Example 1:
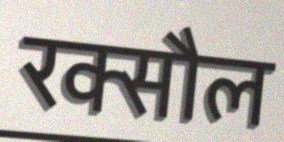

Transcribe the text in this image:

रक्सौल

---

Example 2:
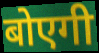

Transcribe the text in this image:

बोएगी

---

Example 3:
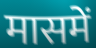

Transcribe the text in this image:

मासमें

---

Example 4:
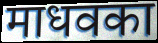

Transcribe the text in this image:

माधवका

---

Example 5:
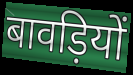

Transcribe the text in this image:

बावड़ियों